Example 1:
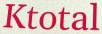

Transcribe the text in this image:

Ktotal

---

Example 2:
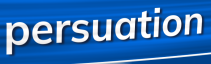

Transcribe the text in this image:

persuation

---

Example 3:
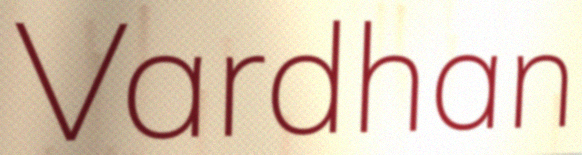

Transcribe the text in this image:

Vardhan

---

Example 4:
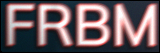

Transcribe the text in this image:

FRBM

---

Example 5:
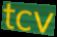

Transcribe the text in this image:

tcv